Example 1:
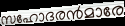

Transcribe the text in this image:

സഹോദരൻമാരേ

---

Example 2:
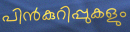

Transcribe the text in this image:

പിൻകുറിപ്പുകളും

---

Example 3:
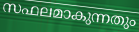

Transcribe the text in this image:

സഫലമാകുന്നതും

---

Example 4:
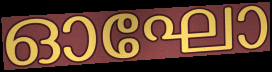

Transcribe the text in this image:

ഓഘോ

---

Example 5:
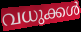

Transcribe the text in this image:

വധുക്കൾ